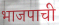
भाजपाची